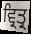
ਵ੍ਰਿਤ੍ਰ